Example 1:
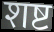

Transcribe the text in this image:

शष्ट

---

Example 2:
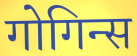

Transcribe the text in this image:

गोगिन्स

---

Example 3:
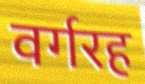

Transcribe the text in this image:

वर्गरह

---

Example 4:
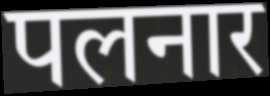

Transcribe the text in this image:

पलनार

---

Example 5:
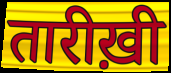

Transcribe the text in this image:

तारीख़ी